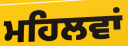
ਮਹਿਲਵਾਂ